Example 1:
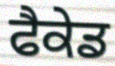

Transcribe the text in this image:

ਫੈਕੇਡ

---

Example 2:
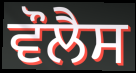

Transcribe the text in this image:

ਵੌਲੈਸ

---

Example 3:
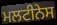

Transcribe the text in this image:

ਮਲਟੀਨੇਸ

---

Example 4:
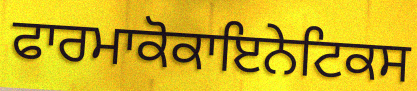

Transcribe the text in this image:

ਫਾਰਮਾਕੋਕਾਇਨੇਟਿਕਸ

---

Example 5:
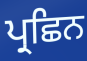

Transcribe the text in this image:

ਪ੍ਰਛਿਨ